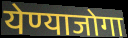
येण्याजोगा